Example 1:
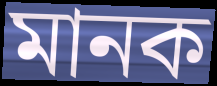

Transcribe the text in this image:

মানক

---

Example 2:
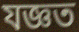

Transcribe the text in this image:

যজ্ঞত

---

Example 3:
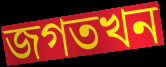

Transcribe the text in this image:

জগতখন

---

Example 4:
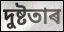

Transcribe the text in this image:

দুষ্টতাৰ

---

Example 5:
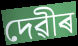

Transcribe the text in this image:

দেৱীৰ